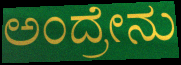
ಅಂದ್ರೇನು